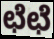
ಛೆಛೆ